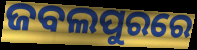
ଜବଲପୁରରେ